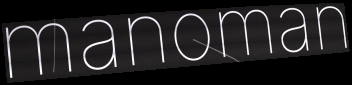
manoman